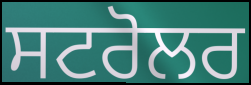
ਸਟਰੋਲਰ